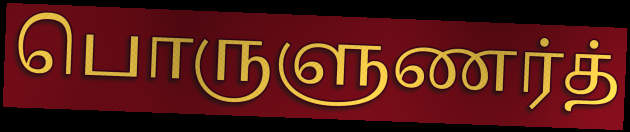
பொருளுணர்த்